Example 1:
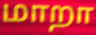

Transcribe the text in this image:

மாறா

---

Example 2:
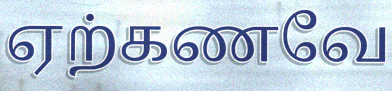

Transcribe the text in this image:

ஏற்கணவே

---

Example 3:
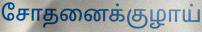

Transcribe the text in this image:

சோதனைக்குழாய்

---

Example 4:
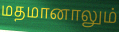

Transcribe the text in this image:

மதமானாலும்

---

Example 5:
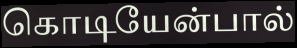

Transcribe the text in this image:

கொடியேன்பால்